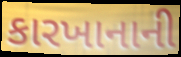
કારખાનાની